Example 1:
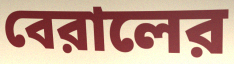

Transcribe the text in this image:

বেরালের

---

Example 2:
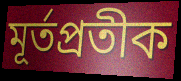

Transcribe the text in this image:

মূর্তপ্রতীক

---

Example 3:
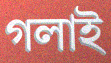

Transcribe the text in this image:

গলাই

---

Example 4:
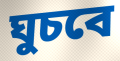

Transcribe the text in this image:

ঘুচবে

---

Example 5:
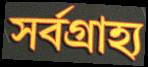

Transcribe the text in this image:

সর্বগ্রাহ্য